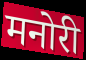
मनोरी